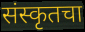
संस्कृतचा